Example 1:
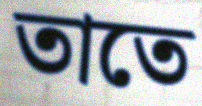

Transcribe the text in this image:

তাতে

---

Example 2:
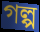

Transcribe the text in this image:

গল্প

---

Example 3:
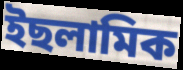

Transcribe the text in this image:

ইছলামিক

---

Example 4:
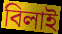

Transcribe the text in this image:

বিলাই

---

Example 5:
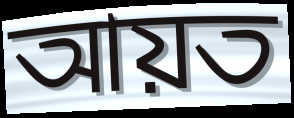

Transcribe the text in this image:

আয়ত